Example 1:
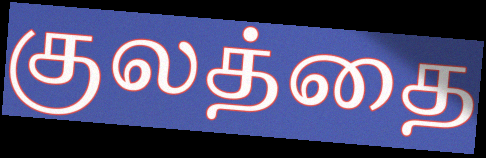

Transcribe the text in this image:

குலத்தை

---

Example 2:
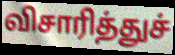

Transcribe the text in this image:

விசாரித்துச்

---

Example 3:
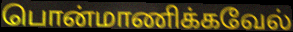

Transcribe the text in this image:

பொன்மாணிக்கவேல்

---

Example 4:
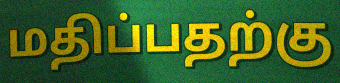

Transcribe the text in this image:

மதிப்பதற்கு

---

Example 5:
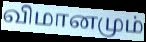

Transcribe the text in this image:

விமானமும்